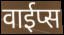
वाईप्स